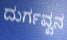
ದುರ್ಗವ್ವನ